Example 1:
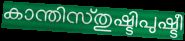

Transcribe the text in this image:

കാന്തിസ്തുഷ്ടിപുഷ്ടീ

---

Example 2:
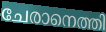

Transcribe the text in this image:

ചേരാനെത്തി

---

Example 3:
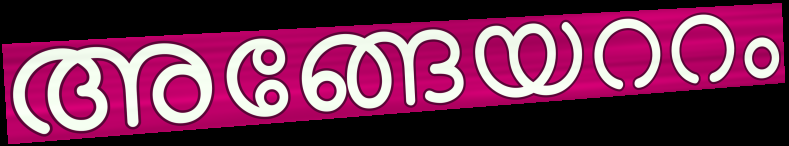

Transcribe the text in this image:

അങ്ങേയററം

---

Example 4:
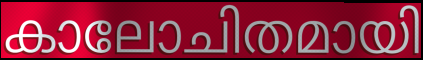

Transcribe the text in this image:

കാലോചിതമായി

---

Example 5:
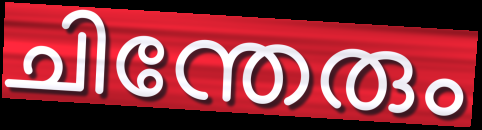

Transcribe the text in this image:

ചിന്തേരും